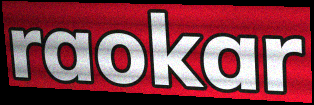
raokar